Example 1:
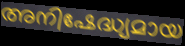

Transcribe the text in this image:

അനിഷേദ്ധ്യമായ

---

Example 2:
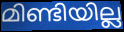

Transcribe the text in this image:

മിണ്ടിയില്ല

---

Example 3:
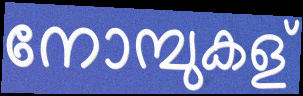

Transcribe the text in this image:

നോമ്പുകള്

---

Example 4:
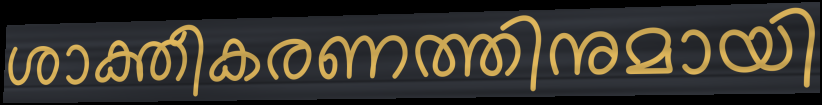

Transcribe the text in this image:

ശാക്തീകരണത്തിനുമായി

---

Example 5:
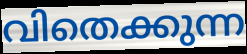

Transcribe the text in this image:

വിതെക്കുന്ന